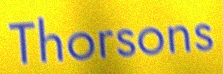
Thorsons